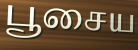
பூசைய